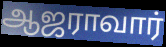
ஆஜராவார்